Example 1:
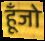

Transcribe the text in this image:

हूँजो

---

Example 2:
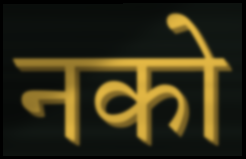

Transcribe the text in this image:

नको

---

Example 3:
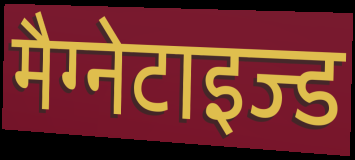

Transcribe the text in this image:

मैग्नेटाइज्ड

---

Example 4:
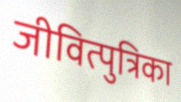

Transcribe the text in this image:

जीवित्पुत्रिका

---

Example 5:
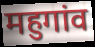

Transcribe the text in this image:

महुगांव